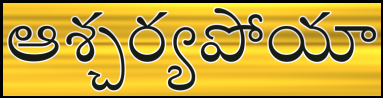
ఆశ్చర్యపోయా